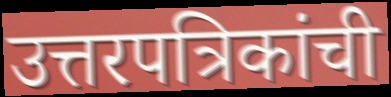
उत्तरपत्रिकांची